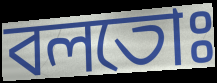
বলতোঃ